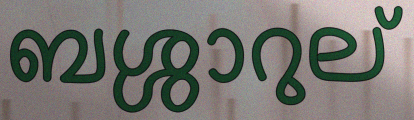
ബശ്ശാറുല്